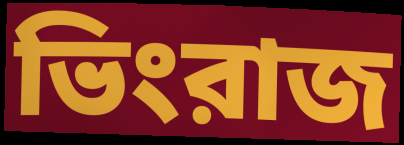
ভিংরাজ